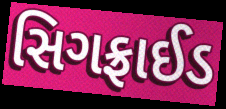
સિગફ્રાઈડ